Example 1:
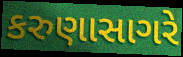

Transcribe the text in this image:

કરુણાસાગરે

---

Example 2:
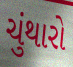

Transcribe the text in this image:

ચુંથારો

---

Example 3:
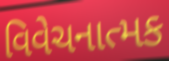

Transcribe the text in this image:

વિવેચનાત્મક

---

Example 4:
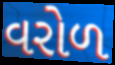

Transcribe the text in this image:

વરોળ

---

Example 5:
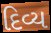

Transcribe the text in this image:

દિવ્ય